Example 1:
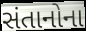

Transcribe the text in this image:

સંતાનોના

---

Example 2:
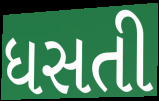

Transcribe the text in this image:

ધસતી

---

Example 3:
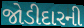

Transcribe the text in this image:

જોડીદારની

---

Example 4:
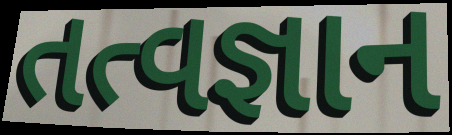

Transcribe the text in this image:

તત્વજ્ઞાન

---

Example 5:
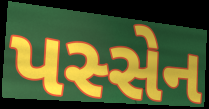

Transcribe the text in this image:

પસ્સેન